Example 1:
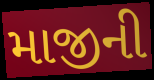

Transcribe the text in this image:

માજીની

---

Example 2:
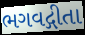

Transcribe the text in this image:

ભગવદ્ગીતા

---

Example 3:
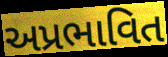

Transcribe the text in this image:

અપ્રભાવિત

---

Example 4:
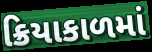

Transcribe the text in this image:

ક્રિયાકાળમાં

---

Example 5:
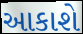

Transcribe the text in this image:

આકાશે